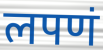
लपणं